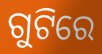
ଗୁଟିରେ